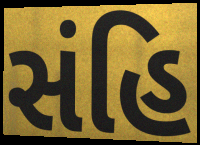
સંહિ